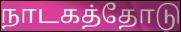
நாடகத்தோடு